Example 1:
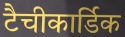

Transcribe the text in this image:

टैचीकार्डिक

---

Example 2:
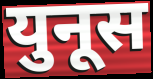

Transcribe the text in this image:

युनूस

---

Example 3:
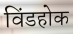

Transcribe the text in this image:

विंडहोक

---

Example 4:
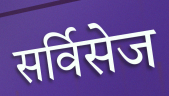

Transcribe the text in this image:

सर्विसेज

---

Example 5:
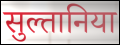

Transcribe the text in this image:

सुल्तानिया